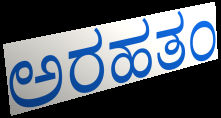
ಅರಹತಂ